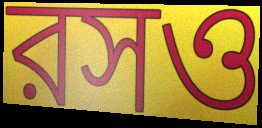
রসও